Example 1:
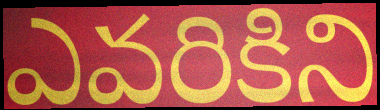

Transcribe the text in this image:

ఎవరికిని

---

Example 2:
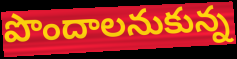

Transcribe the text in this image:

పొందాలనుకున్న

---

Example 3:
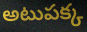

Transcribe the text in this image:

అటుపక్క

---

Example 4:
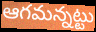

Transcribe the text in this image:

ఆగమన్నట్టు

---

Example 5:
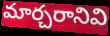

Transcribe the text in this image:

మార్చరానివి